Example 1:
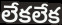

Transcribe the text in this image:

లేకలేక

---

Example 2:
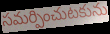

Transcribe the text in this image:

సమర్పించుటకును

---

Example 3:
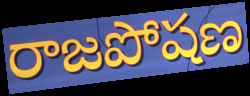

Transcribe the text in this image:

రాజపోషణ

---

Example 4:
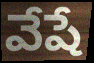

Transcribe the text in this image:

వేషే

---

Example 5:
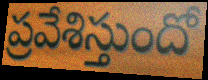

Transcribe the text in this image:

ప్రవేశిస్తుందో